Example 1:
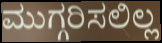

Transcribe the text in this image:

ಮುಗ್ಗರಿಸಲಿಲ್ಲ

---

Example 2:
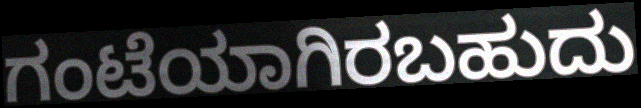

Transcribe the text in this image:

ಗಂಟೆಯಾಗಿರಬಹುದು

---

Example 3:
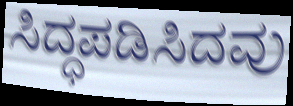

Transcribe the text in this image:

ಸಿದ್ಧಪಡಿಸಿದವು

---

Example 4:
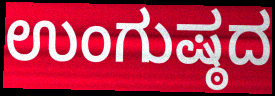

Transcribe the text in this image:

ಉಂಗುಷ್ಠದ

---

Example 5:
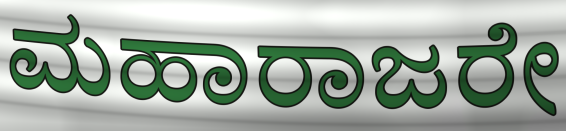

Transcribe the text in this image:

ಮಹಾರಾಜರೇ